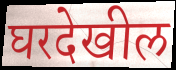
घरदेखील